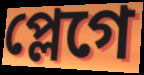
প্লেগে